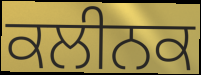
ਕਲੀਨਕ